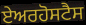
ਏਅਰਹੋਸਟੈਸ